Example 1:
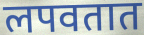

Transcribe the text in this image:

लपवतात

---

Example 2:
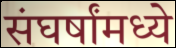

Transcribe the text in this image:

संघर्षांमध्ये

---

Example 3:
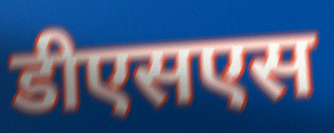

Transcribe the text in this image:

डीएसएस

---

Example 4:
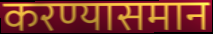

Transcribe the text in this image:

करण्यासमान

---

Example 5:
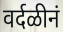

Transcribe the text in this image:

वर्दळीनं